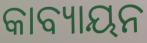
କାବ୍ୟାୟନ